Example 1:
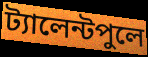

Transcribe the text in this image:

ট্যালেন্টপুলে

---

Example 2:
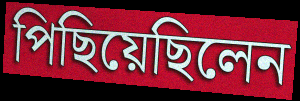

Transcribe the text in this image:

পিছিয়েছিলেন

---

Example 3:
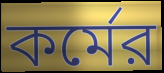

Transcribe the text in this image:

কর্মের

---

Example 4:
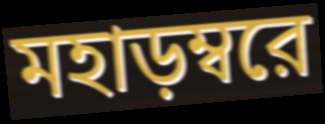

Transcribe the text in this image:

মহাড়ম্বরে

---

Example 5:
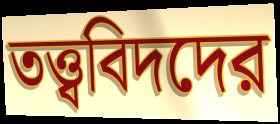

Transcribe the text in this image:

তত্ত্ববিদদের